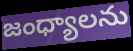
జంధ్యాలను